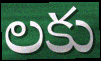
లకు